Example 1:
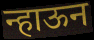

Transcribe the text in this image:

न्हाऊन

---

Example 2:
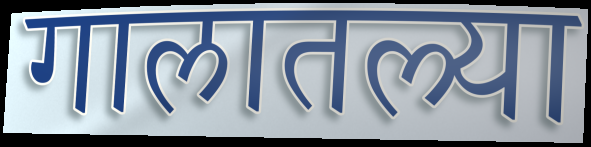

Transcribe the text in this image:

गालातल्या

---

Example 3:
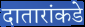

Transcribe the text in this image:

दातारांकडे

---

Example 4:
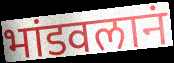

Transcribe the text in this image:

भांडवलानं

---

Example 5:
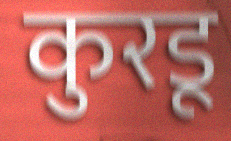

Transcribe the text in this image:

कुरडू